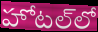
హోటల్‌లో